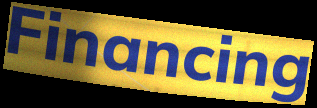
Financing